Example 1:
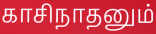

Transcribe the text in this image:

காசிநாதனும்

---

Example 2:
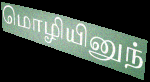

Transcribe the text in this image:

மொழியினுந்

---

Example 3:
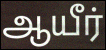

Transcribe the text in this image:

ஆயீர்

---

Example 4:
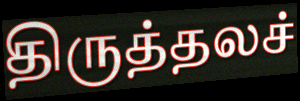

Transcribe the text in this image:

திருத்தலச்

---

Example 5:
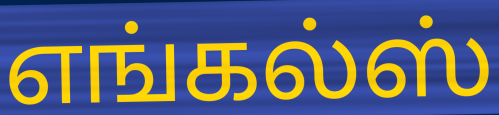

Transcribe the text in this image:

எங்கல்ஸ்